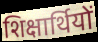
शिक्षार्थियों